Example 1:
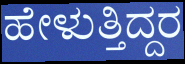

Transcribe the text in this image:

ಹೇಳುತ್ತಿದ್ದರ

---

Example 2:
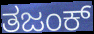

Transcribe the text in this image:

ತಜಂಕ್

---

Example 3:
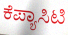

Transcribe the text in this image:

ಕೆಪ್ಯಾಸಿಟಿ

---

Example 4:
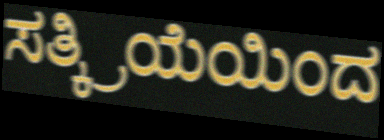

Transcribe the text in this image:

ಸತ್ಕ್ರಿಯೆಯಿಂದ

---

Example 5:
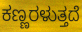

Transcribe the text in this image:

ಕಣ್ಣರಳುತ್ತದೆ